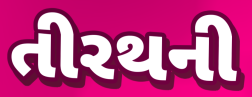
તીરથની